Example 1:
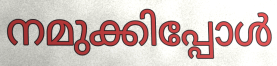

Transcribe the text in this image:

നമുക്കിപ്പോൾ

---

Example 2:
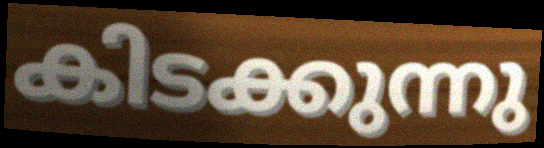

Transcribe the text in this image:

കിടക്കുന്നു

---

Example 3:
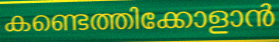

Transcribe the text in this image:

കണ്ടെത്തിക്കോളാൻ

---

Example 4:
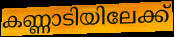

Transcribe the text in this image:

കണ്ണാടിയിലേക്ക്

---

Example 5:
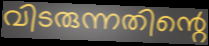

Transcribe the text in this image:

വിടരുന്നതിന്റെ